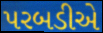
પરબડીએ